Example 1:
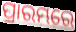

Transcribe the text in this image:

ପ୍ରାରମ୍ଭରେ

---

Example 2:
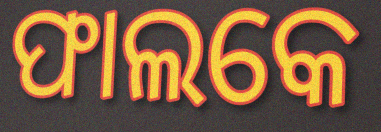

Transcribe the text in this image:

ଫାଲକେ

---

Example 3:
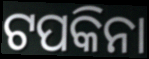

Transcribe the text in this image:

ଟପକିନା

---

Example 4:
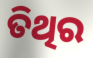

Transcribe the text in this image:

ତିଥିର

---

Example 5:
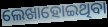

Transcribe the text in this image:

ଲେଖାହୋଇଥିବା